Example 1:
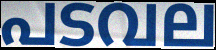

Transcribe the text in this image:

പടവല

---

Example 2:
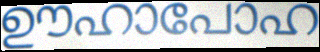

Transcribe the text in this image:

ഊഹാപോഹ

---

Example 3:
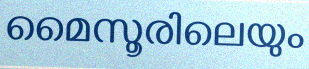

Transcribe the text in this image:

മൈസൂരിലെയും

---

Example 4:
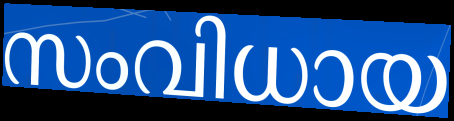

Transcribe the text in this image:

സംവിധായ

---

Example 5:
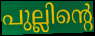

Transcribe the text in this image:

പുല്ലിന്റെ